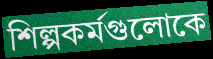
শিল্পকর্মগুলোকে